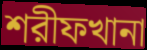
শরীফখানা